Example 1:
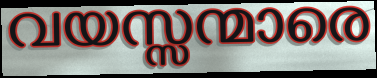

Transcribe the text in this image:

വയസ്സന്മാരെ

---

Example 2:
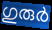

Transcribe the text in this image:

ഗുരുർ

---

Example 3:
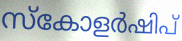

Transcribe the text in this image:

സ്കോളർഷിപ്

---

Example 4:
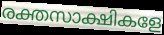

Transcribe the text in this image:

രക്തസാക്ഷികളേ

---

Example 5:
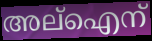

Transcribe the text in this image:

അല്ഐന്